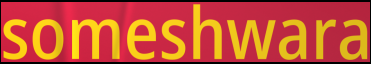
someshwara